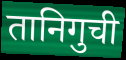
तानिगुची